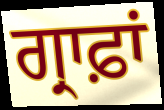
ਗ੍ਰਾਫ਼ਾਂ